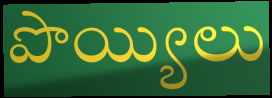
పొయ్యిలు